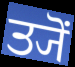
ਤ੍ਯੋਂ